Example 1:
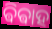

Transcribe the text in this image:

ଵିଵାହ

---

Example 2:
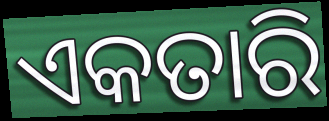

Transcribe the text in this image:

ଏକତାରି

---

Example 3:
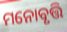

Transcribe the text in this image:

ମନୋବୃତ୍ତି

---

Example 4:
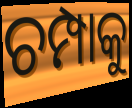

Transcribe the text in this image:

ଚମ୍ପାକୁ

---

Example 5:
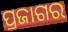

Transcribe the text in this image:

ପ୍ରଜାଗର